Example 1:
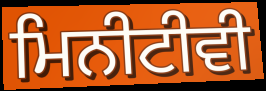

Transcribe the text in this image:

ਮਿਨੀਟੀਵੀ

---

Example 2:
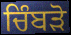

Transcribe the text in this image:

ਚਿੰਬੜੋ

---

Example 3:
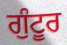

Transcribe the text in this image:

ਗੁੰਟੂਰ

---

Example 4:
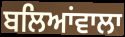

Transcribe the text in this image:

ਬਲਿਆਂਵਾਲਾ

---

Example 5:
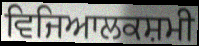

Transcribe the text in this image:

ਵਿਜਿਆਲਕਸ਼ਮੀ